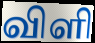
விளி